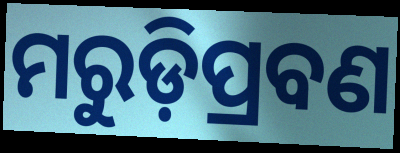
ମରୁଡ଼ିପ୍ରବଣ